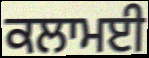
ਕਲਾਮਈ